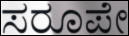
ಸರೂಪೇ